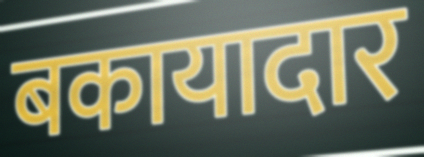
बकायादार